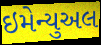
ઇમેન્યુઅલ